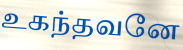
உகந்தவனே